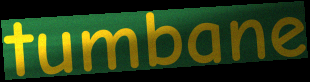
tumbane